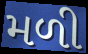
મળી